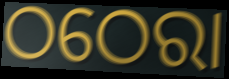
ଠଠେରା